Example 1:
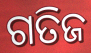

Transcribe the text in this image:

ଗତିଜ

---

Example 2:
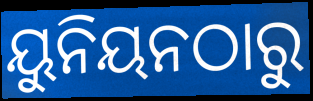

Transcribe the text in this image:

ୟୁନିୟନଠାରୁ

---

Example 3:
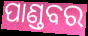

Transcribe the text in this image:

ପାଣ୍ଡବର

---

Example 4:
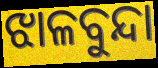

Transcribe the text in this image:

ଝାଳବୁନ୍ଦା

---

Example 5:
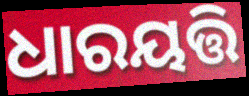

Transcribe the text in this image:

ଧାରୟତ୍ତି